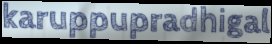
karuppupradhigal